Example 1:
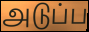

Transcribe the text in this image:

அடுப்ப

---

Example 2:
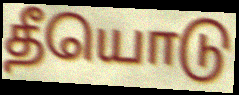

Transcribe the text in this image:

தீயொடு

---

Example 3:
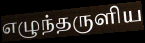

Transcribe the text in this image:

எழுந்தருளிய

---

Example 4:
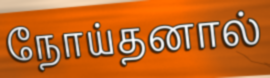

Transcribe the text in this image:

நோய்தனால்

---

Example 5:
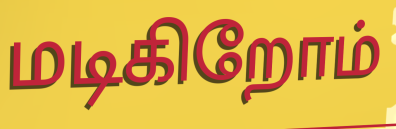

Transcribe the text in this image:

மடிகிறோம்